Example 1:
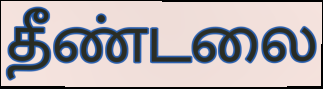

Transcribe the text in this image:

தீண்டலை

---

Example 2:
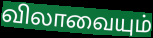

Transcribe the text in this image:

விலாவையும்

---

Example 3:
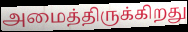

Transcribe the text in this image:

அமைத்திருக்கிறது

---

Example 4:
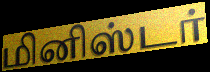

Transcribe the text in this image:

மினிஸ்டர்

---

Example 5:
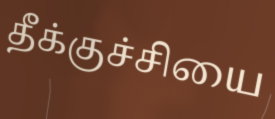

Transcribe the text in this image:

தீக்குச்சியை